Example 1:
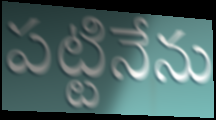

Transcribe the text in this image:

పట్టినేను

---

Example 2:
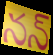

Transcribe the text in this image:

నన్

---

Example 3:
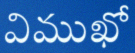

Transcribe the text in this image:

విముఖో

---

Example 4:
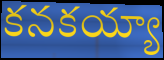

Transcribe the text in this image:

కనకయ్యా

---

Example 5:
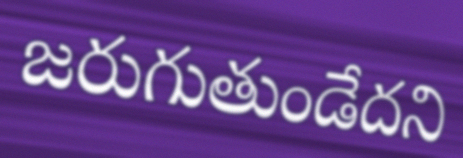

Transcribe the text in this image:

జరుగుతుండేదని